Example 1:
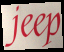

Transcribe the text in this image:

jeep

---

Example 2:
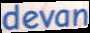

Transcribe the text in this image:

devan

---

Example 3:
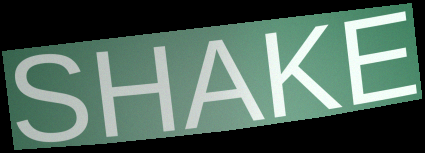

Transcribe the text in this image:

SHAKE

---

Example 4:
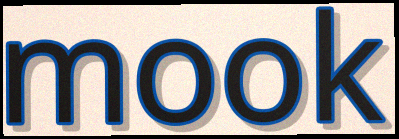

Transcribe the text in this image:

mook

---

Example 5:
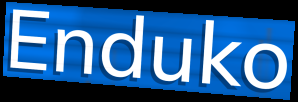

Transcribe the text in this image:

Enduko